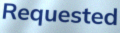
Requested